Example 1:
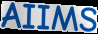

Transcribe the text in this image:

AIIMS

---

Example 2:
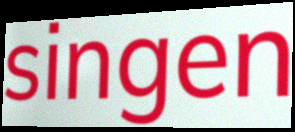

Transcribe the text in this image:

singen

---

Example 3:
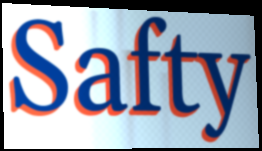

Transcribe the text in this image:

Safty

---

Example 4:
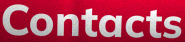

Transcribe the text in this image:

Contacts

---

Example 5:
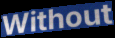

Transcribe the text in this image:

Without